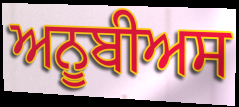
ਅਨੂਬੀਅਸ